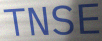
TNSE